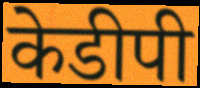
केडीपी